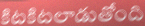
కిటకిటలాడుతోంది